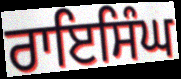
ਰਾਇਸਿੰਘ